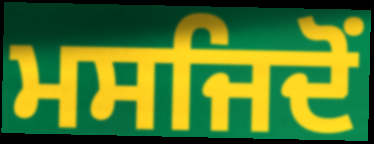
ਮਸਜਿਦੋਂ